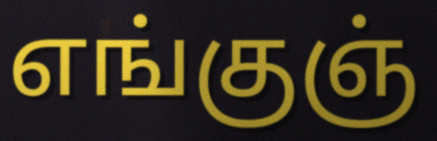
எங்குஞ்